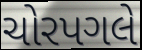
ચોરપગલે